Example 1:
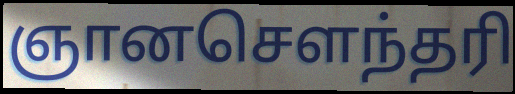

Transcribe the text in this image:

ஞானசெளந்தரி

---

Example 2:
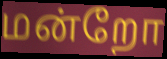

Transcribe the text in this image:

மன்றோ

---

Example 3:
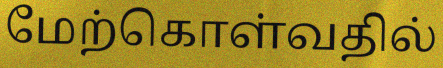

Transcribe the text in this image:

மேற்கொள்வதில்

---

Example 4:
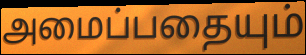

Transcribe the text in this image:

அமைப்பதையும்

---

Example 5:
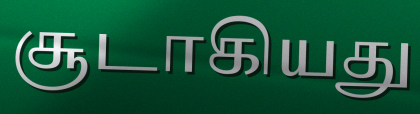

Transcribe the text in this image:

சூடாகியது